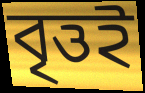
বৃত্তই